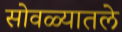
सोवळ्यातले